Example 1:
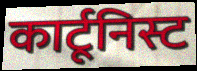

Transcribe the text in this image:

कार्टूनिस्ट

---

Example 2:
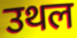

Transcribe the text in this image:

उथल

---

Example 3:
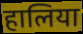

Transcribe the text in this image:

हालिया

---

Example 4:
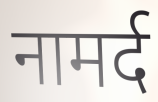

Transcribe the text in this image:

नामर्द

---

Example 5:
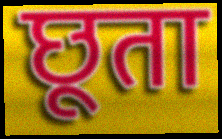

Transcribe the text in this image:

छूता